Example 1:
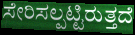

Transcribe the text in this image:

ಸೇರಿಸಲ್ಪಟ್ಟಿರುತ್ತದೆ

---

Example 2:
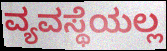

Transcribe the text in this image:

ವ್ಯವಸ್ಥೆಯಲ್ಲ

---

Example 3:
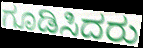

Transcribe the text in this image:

ಗೂಡಿಸಿದರು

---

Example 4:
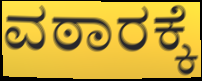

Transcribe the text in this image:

ವಠಾರಕ್ಕೆ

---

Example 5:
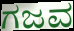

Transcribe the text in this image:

ಗಜವ